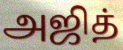
அஜித்